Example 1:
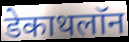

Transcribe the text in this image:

डेकाथलॉन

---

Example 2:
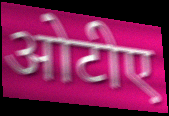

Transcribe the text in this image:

ओटीए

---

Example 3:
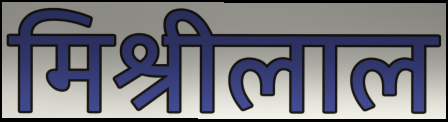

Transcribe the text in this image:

मिश्रीलाल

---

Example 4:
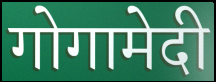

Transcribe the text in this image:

गोगामेदी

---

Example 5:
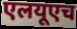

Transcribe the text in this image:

एलयूएच